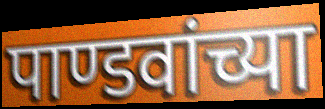
पाण्डवांच्या